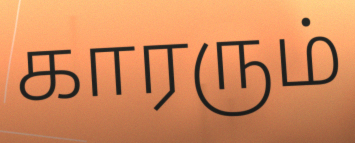
காரரும்